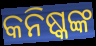
କନିଷ୍କଙ୍କ